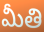
మీతి